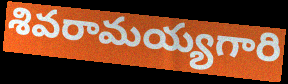
శివరామయ్యగారి